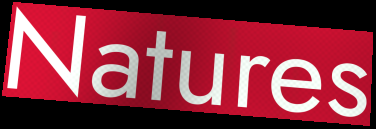
Natures